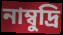
নাম্বুদ্রি